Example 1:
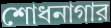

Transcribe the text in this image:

শোধনাগার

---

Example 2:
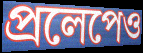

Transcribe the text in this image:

প্রলেপেও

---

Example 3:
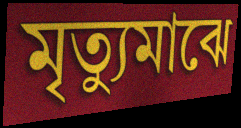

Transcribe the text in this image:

মৃত্যুমাঝে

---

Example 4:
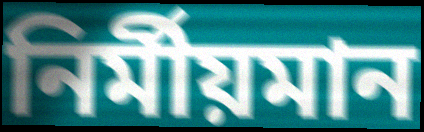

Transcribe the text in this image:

নির্মীয়মান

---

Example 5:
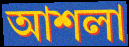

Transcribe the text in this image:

আশলা